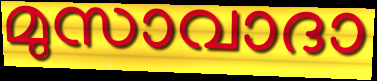
മുസാവാദാ